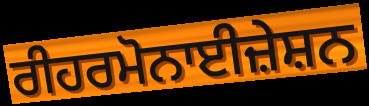
ਰੀਹਰਮੋਨਾਈਜ਼ੇਸ਼ਨ